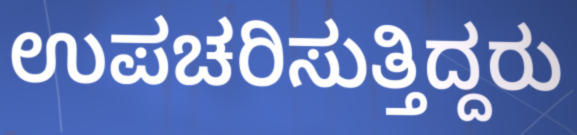
ಉಪಚರಿಸುತ್ತಿದ್ದರು